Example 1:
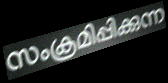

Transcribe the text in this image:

സംക്രമിപ്പിക്കുന്ന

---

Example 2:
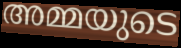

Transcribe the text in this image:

അമ്മയുടെ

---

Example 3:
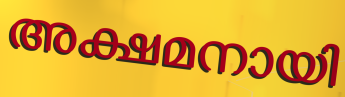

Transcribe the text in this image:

അക്ഷമനായി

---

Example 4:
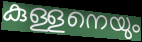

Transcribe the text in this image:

കുള്ളനെയും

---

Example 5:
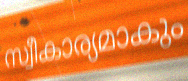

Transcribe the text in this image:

സ്വീകാര്യമാകും